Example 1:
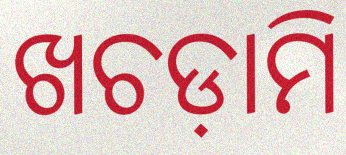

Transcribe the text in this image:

ଖଚଡ଼ାମି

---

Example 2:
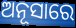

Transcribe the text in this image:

ଅନୂସାରେ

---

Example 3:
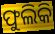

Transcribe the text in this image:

ଫୁଲିକି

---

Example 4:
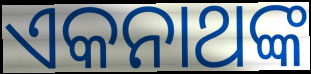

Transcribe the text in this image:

ଏକନାଥଙ୍କ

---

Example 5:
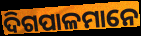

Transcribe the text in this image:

ଦିଗପାଳମାନେ